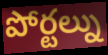
పోర్టల్ను